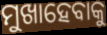
ମୁଖାହେବାକୁ